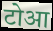
टोआ